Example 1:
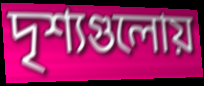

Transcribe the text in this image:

দৃশ্যগুলোয়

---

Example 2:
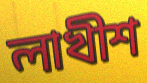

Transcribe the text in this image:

লাখীশ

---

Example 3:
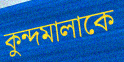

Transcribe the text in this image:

কুন্দমালাকে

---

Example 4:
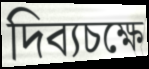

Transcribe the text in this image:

দিব্যচক্ষে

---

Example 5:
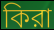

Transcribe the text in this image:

কিরা